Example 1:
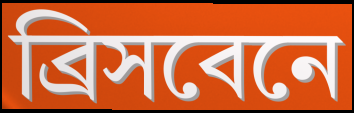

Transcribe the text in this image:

ব্রিসবেনে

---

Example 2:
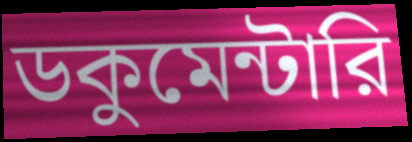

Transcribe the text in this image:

ডকুমেন্টারি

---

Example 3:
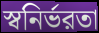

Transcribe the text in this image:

স্বনির্ভরতা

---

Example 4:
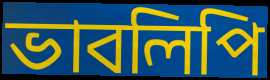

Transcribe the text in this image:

ভাবলিপি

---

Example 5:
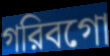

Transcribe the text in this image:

গরিবগো